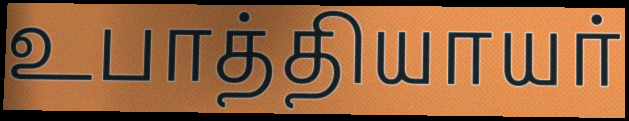
உபாத்தியாயர்